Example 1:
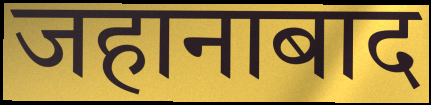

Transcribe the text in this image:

जहानाबाद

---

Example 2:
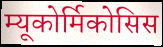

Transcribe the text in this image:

म्यूकोर्मिकोसिस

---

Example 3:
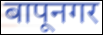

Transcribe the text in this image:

बापूनगर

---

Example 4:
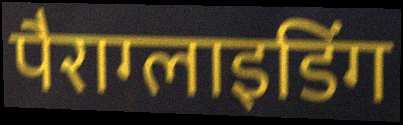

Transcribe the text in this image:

पैराग्लाइडिंग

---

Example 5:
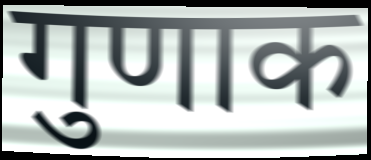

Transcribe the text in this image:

गुणाक